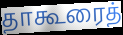
தாகூரைத்